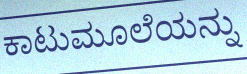
ಕಾಟುಮೂಲೆಯನ್ನು